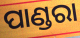
ପାଣ୍ଡରା